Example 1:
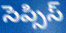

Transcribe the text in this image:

సెప్సిస్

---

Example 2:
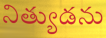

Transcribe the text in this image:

నిత్యుడను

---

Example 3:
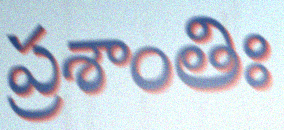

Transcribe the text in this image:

ప్రశాంతిః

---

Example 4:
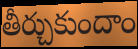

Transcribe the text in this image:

తీర్చుకుందాం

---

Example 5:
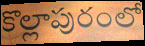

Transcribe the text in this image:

కొల్లాపురంలో